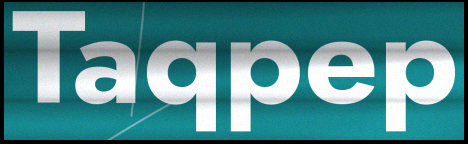
Taqpep